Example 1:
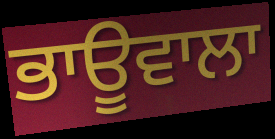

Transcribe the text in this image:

ਭਾਊਵਾਲਾ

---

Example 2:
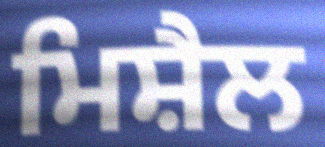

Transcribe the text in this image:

ਮਿਸ਼ੈਲ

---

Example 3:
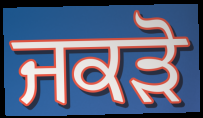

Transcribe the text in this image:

ਜਕੜੋ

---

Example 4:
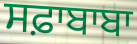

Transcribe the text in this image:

ਸਫ਼ਾਬਾਬਾ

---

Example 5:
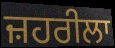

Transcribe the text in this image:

ਜ਼ਹਰੀਲਾ